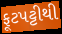
ફૂટપટ્ટીથી